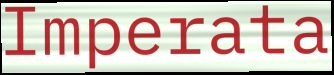
Imperata